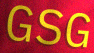
GSG